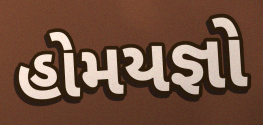
હોમયજ્ઞો